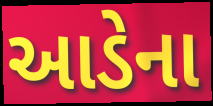
આડેના